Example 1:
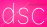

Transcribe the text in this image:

dsc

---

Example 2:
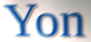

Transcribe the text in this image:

Yon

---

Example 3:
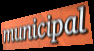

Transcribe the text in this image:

municipal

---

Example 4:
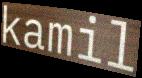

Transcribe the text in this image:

kamil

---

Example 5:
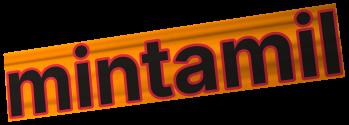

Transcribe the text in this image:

mintamil